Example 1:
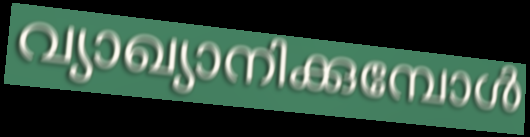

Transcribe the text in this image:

വ്യാഖ്യാനിക്കുമ്പോൾ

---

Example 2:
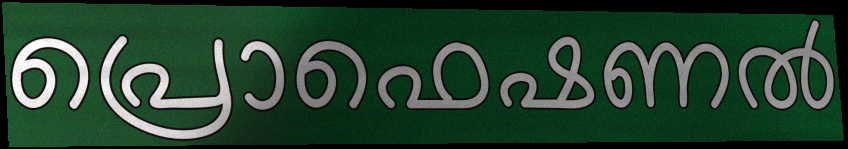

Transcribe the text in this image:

പ്രൊഫെഷണൽ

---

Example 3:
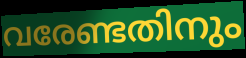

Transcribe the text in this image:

വരേണ്ടതിനും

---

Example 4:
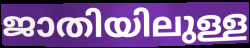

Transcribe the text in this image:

ജാതിയിലുള്ള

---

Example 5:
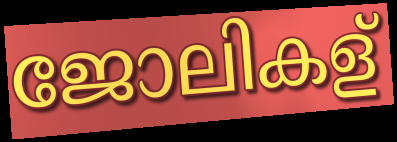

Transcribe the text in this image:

ജോലികള്